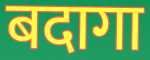
बदागा